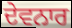
ਦੇਵਨਾਰ